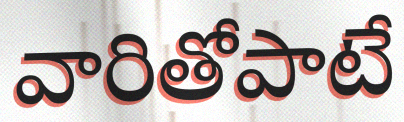
వారితోపాటే